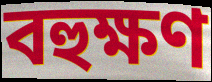
বহুক্ষণ